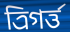
ত্রিগর্ত্ত